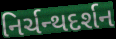
નિર્ચન્થદર્શન